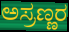
ಅಸ್ರಣ್ಣರ